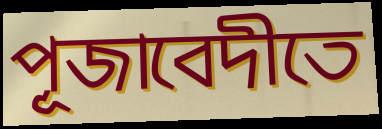
পূজাবেদীতে